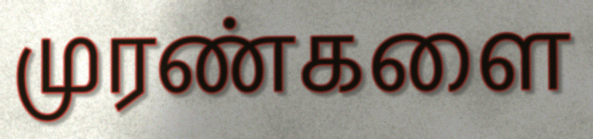
முரண்களை